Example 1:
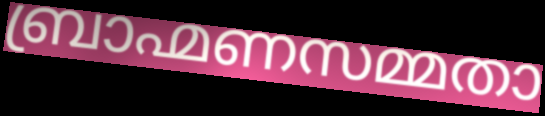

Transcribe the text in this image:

ബ്രാഹ്മണസമ്മതാ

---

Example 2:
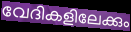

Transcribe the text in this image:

വേദികളിലേക്കും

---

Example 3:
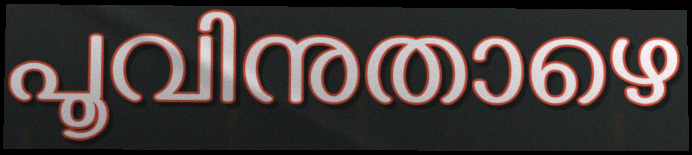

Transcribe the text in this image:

പൂവിനുതാഴെ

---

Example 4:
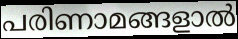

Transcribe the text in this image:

പരിണാമങ്ങളാൽ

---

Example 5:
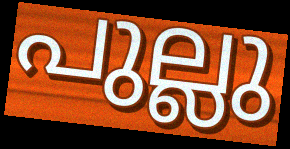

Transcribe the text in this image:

പുല്ലു